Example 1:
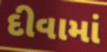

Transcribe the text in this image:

દીવામાં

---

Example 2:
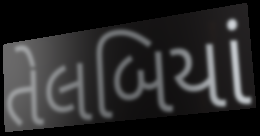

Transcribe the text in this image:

તેલબિયાં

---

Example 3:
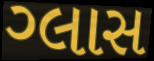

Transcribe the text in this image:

ગ્લાસ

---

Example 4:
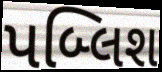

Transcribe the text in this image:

પબ્લિશ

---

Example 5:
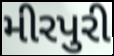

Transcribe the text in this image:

મીરપુરી